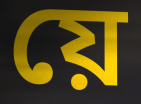
য়ে